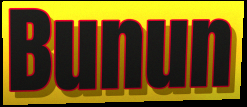
Bunun